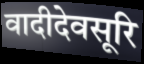
वादीदेवसूरि